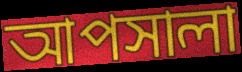
আপসালা